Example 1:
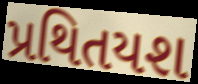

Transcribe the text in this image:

પ્રથિતયશ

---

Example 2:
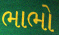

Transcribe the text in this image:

ભાભો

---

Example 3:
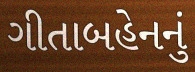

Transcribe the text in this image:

ગીતાબહેનનું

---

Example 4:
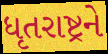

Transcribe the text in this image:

ધૃતરાષ્ટ્રને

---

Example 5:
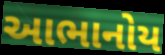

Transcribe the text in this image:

આભાનોય